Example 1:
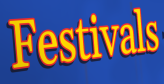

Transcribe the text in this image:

Festivals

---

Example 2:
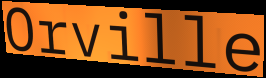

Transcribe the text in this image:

Orville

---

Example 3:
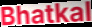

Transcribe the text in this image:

Bhatkal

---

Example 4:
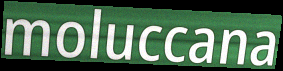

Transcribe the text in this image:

moluccana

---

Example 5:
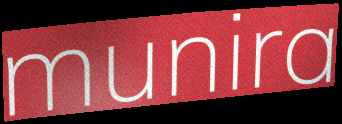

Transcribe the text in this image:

munira